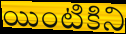
యింటికిని